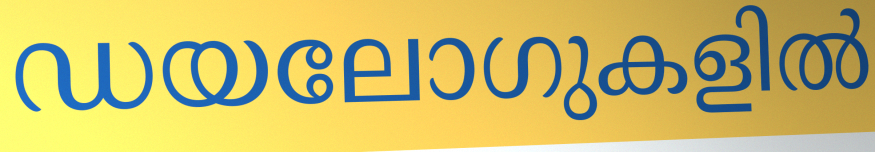
ഡയലോഗുകളിൽ